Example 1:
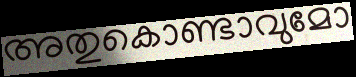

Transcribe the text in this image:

അതുകൊണ്ടാവുമോ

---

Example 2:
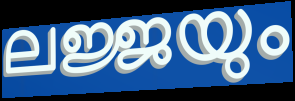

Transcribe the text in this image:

ലജ്ജയും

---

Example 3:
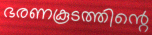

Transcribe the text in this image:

ഭരണകൂടത്തിന്റെ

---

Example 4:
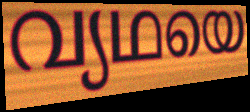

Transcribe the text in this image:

വ്യഥയെ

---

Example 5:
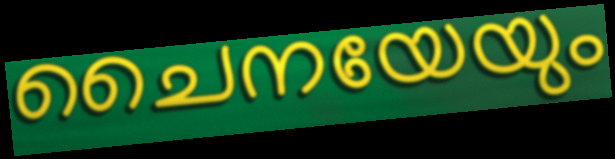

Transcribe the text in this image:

ചൈനയേയും